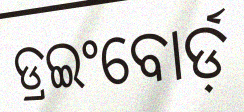
ଡ୍ରଇଂବୋର୍ଡ଼